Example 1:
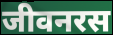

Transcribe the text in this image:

जीवनरस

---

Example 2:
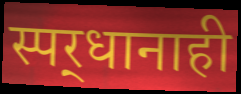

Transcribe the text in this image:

स्पर्धानाही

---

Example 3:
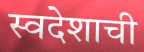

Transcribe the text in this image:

स्वदेशाची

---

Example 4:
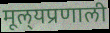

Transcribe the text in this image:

मूल्यप्रणाली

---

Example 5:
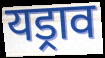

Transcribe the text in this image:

यड्राव